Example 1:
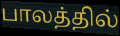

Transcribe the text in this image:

பாலத்தில்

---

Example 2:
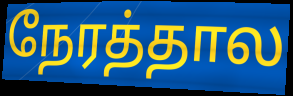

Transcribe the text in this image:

நேரத்தால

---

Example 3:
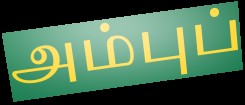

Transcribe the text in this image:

அம்புப்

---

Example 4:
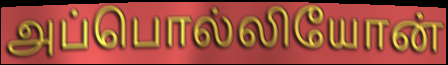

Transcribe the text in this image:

அப்பொல்லியோன்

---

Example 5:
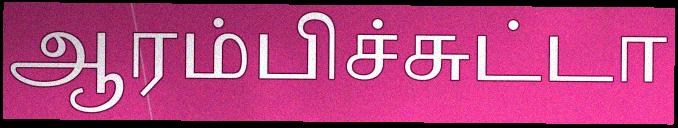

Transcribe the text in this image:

ஆரம்பிச்சுட்டா